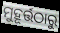
ମୁହୂର୍ତ୍ତଠାରୁ